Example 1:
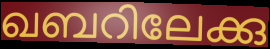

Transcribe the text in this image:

ഖബറിലേക്കു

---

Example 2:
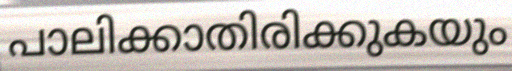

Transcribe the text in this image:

പാലിക്കാതിരിക്കുകയും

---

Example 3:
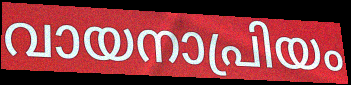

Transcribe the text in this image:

വായനാപ്രിയം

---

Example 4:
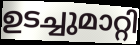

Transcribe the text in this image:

ഉടച്ചുമാറ്റി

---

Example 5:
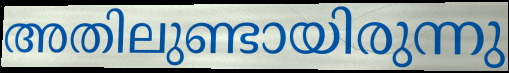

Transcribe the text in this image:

അതിലുണ്ടായിരുന്നു